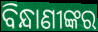
ବିନ୍ଧାଣୀଙ୍କର